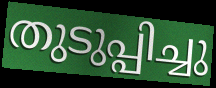
തുടുപ്പിച്ചു